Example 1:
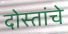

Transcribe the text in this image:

दोस्तांचे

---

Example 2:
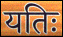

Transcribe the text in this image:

यतिः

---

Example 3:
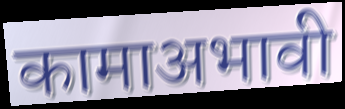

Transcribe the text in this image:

कामाअभावी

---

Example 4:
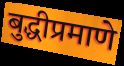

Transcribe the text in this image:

बुद्धीप्रमाणे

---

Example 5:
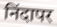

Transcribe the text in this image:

निंदापर